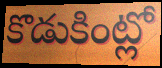
కొడుకింట్లో